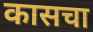
कासचा